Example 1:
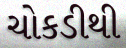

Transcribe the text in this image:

ચોકડીથી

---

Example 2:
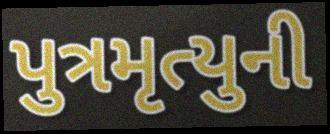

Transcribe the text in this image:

પુત્રમૃત્યુની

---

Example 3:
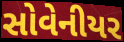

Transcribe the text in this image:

સોવેનીયર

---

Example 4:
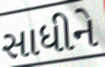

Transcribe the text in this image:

સાધીને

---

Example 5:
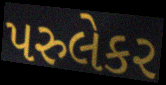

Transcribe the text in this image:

પરુલેકર